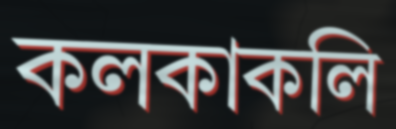
কলকাকলি